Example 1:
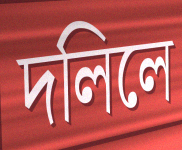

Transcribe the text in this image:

দলিলে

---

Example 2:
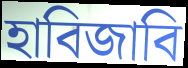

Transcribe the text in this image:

হাবিজাবি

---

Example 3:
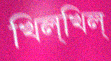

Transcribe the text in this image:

খিল্খিল্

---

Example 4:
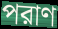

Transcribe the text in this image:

পরাণ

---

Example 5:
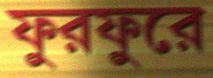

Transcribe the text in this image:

ফুরফুরে